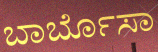
ಬಾರ್ಬೊಸಾ